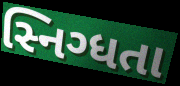
સ્નિગ્ધતા